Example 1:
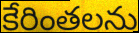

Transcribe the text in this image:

కేరింతలను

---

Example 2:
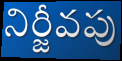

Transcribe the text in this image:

నిర్జీవపు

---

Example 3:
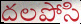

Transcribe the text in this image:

దలపోసి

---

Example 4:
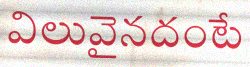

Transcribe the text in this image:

విలువైనదంటే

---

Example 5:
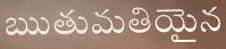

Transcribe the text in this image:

ఋతుమతియైన